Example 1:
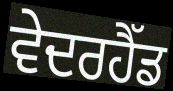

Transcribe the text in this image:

ਵੇਦਰਹੈੱਡ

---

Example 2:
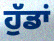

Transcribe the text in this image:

ਹੁੱਡਾਂ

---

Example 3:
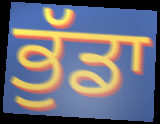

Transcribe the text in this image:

ਭੁੱਡਾ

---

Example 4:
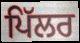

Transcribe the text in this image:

ਪਿੱਲਰ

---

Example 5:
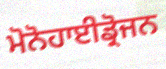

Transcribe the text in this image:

ਮੋਨੋਹਾਈਡ੍ਰੋਜਨ